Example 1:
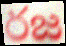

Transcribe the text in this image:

రజ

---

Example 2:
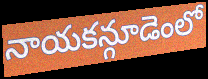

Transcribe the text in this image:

నాయకన్గూడెంలో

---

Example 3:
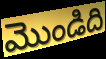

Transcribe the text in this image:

మొండిది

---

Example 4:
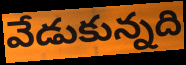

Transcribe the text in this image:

వేడుకున్నది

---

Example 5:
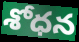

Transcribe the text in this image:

శోధన